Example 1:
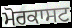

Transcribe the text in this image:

ਮੋਰਕਾਸਟ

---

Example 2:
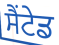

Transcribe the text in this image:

ਸੈਂਟੇਡ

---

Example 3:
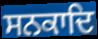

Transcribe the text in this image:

ਸਨਕਾਦਿ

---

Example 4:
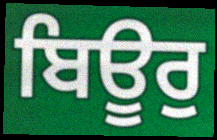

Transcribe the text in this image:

ਬਿਊਰੁ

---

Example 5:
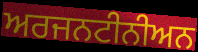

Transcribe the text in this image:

ਅਰਜਨਟੀਨੀਅਨ